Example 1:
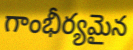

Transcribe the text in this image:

గాంభీర్యమైన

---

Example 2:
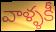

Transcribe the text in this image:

వాళ్ళకీ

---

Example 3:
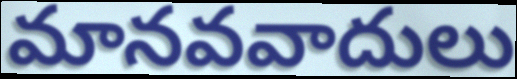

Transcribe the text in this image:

మానవవాదులు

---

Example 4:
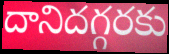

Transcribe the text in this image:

దానిదగ్గరకు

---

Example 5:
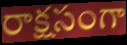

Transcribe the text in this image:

రాక్షసంగా